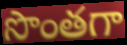
సొంతగా